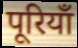
पूरियाँ